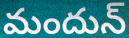
మందున్